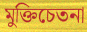
মুক্তিচেতনা